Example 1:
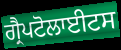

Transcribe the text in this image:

ਗ੍ਰੈਪਟੋਲਾਈਟਸ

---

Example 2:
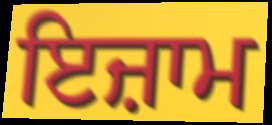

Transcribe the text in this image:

ਇਜ਼ਾਮ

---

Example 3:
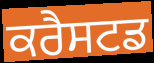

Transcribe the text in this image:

ਕਰੈਸਟਡ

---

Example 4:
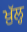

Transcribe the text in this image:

ਖ਼ੁੱਲ੍ਹ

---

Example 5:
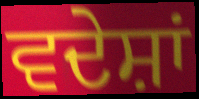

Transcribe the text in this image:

ਵਦੇਸ਼ਾਂ